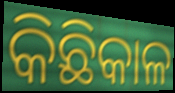
କିଛିକାଳ